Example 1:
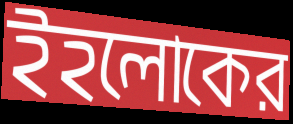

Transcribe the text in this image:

ইহলোকের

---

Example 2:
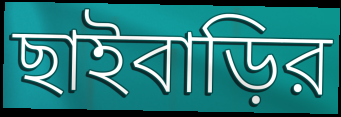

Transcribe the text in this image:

ছাইবাড়ির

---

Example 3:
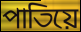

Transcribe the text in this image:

পাতিয়ে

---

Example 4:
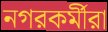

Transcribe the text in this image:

নগরকর্মীরা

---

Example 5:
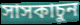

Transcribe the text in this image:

সাসকাচুন